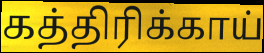
கத்திரிக்காய்